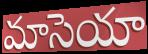
మాసెయా